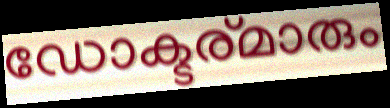
ഡോക്ടര്മാരും